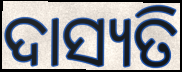
ଦାସ୍ୟତି